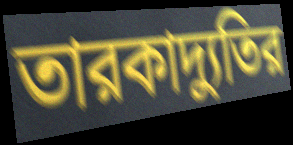
তারকাদ্যুতির